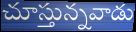
చూస్తున్నవాడు